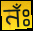
নঁঃ